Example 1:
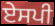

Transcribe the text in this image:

ਏਸਪੀ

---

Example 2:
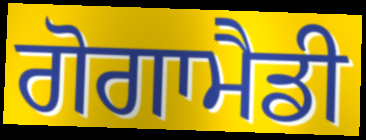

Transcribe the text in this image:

ਗੋਗਾਮੈਡੀ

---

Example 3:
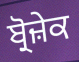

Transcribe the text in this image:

ਬ੍ਰੋਜ਼ੇਕ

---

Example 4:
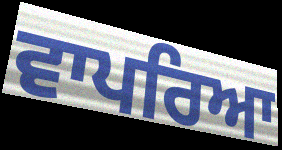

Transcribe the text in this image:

ਵਾਪਰਿਆ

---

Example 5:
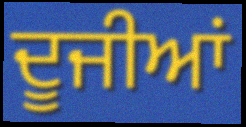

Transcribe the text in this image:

ਦੂਜੀਆਂ